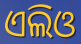
ଏଲିଓ